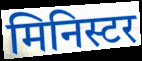
मिनिस्टर